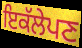
ਇਕੱਲੇਪਣ